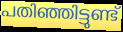
പതിഞ്ഞിട്ടുണ്ട്